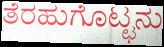
ತೆರಹುಗೊಟ್ಟನು